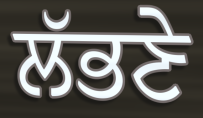
ਲੱਭਣੇ